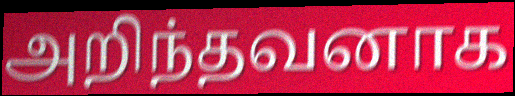
அறிந்தவனாக